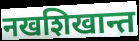
नखशिखान्त